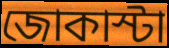
জোকাস্টা